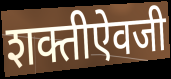
शक्तीऐवजी